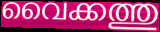
വൈക്കത്തു